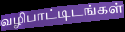
வழிபாட்டிடங்கள்